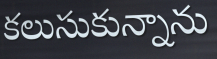
కలుసుకున్నాను